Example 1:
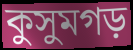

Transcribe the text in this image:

কুসুমগড়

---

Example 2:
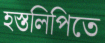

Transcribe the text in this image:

হস্তলিপিতে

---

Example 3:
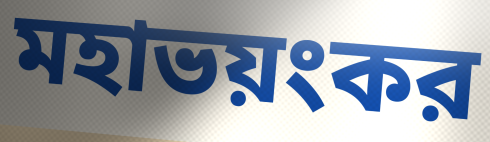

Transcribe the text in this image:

মহাভয়ংকর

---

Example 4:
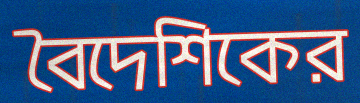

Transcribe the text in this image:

বৈদেশিকের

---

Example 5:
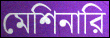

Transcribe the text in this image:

মেশিনারি